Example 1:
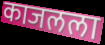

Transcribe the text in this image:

काजलला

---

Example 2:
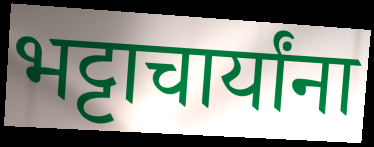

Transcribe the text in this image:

भट्टाचार्यांना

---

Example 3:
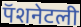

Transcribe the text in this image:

पॅशनेटली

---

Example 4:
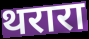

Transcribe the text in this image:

थरारा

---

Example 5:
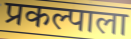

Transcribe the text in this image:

प्रकल्पाला